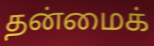
தன்மைக்